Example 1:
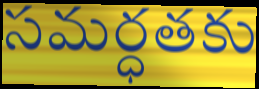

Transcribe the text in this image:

సమర్ధతకు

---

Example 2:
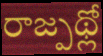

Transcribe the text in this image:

రాజ్పథ్లో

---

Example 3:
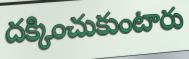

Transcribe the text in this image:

దక్కించుకుంటారు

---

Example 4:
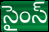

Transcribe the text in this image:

సైంస్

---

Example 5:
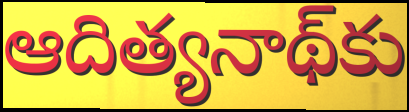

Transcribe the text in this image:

ఆదిత్యనాథ్‌కు